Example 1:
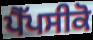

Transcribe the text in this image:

ਪੈੱਪਸੀਕੋ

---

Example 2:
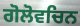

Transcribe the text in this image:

ਗੋਲੋਵਚਿਨ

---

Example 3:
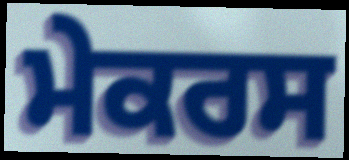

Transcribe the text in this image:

ਮੇਕਰਸ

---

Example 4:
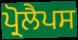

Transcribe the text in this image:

ਪ੍ਰੋਲੈਪਸ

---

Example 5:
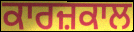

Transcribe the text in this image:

ਕਾਰਜ਼ਕਾਲ